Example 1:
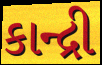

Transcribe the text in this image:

કાન્દ્રી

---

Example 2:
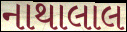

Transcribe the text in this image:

નાથાલાલ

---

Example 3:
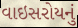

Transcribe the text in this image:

વાઇસરોયનું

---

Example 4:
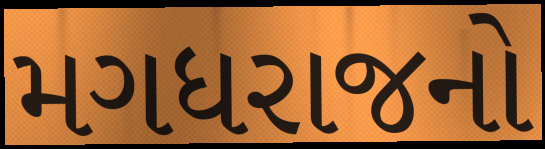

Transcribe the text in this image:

મગધરાજનો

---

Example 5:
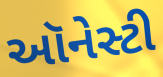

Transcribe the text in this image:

ઑનેસ્ટી